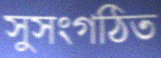
সুসংগঠিত